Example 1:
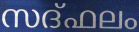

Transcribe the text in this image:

സദ്ഫലം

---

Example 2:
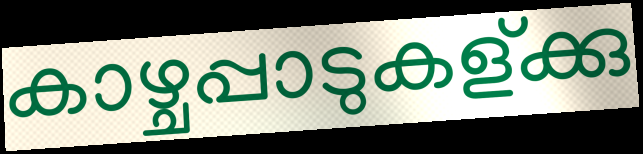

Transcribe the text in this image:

കാഴ്ചപ്പാടുകള്ക്കു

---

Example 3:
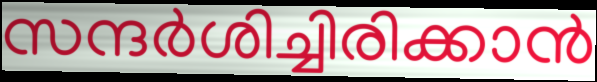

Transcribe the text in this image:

സന്ദർശിച്ചിരിക്കാൻ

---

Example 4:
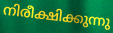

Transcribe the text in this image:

നിരീക്ഷിക്കുന്നു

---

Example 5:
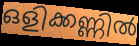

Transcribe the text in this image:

ഒളിക്കണ്ണിൽ